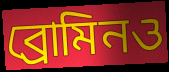
ব্রোমিনও